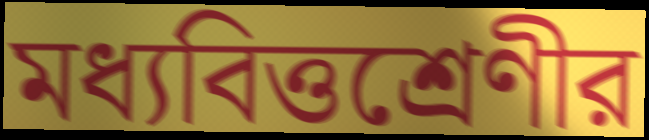
মধ্যবিত্তশ্রেণীর